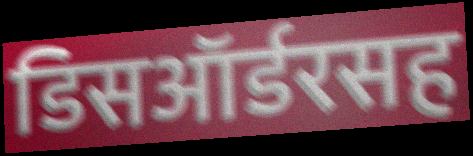
डिसऑर्डरसह